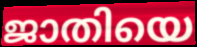
ജാതിയെ